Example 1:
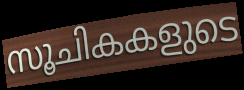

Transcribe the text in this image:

സൂചികകളുടെ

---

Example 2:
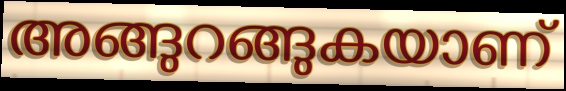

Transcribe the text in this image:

അങ്ങുറങ്ങുകയാണ്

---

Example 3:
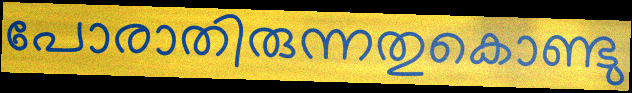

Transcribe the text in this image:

പോരാതിരുന്നതുകൊണ്ടു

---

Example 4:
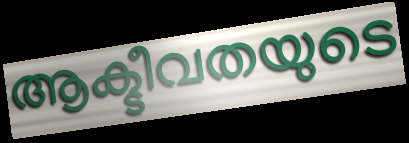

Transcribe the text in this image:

ആക്ടീവതയുടെ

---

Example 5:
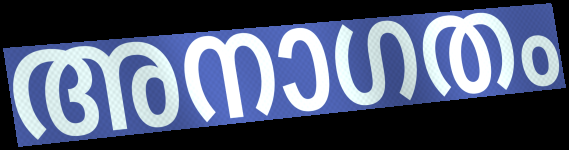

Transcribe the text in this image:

അനാഗതം